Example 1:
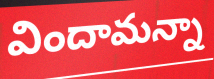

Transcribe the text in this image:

విందామన్నా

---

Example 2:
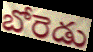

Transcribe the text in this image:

బోరెడు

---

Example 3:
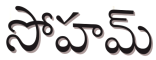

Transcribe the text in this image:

సోహమ్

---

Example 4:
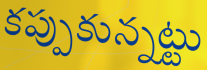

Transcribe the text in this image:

కప్పుకున్నట్టు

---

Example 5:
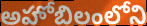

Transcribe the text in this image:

అహోబిలంలోని